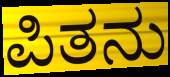
ಪಿತನು